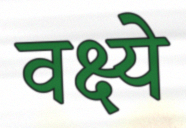
वक्ष्ये